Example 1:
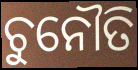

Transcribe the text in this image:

ଚୁନୌତି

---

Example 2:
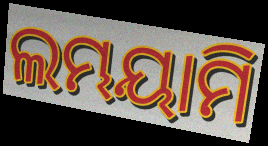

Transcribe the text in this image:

ଲମ୍ଭୟାମି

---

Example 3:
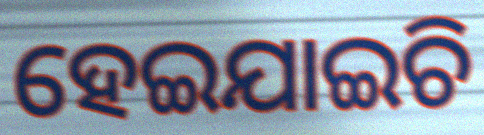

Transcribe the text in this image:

ହେଇଯାଇଚି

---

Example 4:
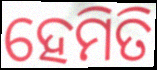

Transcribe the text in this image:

ହେମିତି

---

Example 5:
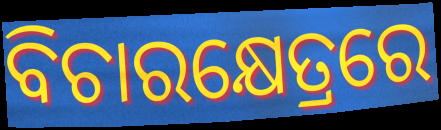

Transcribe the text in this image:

ବିଚାରକ୍ଷେତ୍ରରେ